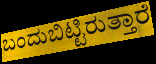
ಬಂದುಬಿಟ್ಟಿರುತ್ತಾರೆ